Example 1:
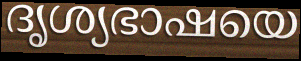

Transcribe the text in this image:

ദൃശ്യഭാഷയെ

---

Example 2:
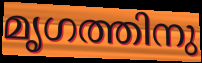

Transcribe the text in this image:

മൃഗത്തിനു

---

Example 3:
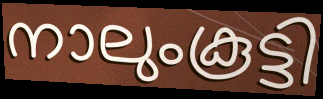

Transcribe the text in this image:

നാലുംകൂട്ടി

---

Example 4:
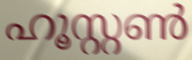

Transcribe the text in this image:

ഹൂസ്റ്റൺ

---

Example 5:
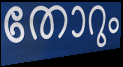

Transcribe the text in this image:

തോറും